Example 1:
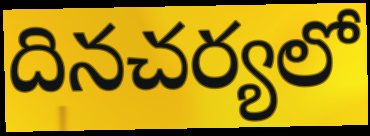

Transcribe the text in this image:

దినచర్యలో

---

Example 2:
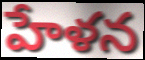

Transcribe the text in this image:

హేళన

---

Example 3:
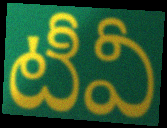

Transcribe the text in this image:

టీవీ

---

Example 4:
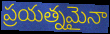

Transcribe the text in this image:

ప్రయత్నమైనా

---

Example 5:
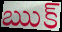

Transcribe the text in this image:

ఋక్